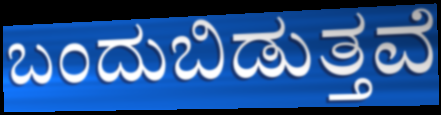
ಬಂದುಬಿಡುತ್ತವೆ